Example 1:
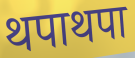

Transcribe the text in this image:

थपाथपा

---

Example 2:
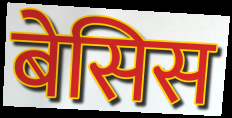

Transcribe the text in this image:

बेसिस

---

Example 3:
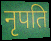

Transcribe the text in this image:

नृपति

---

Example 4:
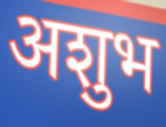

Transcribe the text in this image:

अशुभ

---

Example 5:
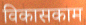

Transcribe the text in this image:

विकासकाम